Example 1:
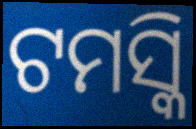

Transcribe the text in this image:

ଟମସ୍କି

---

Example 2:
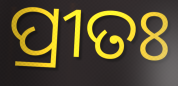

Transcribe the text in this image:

ପ୍ରୀତଃ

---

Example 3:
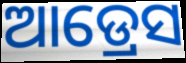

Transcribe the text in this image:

ଆଡ୍ରେସ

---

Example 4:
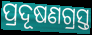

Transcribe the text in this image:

ପ୍ରଦୂଷଣଗ୍ରସ୍ତ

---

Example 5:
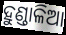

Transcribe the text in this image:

ହୁଣ୍ଡାଳିଆ